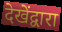
देखेंद्वारा